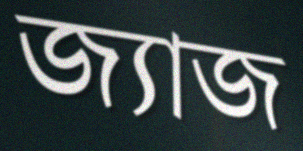
জ্যাজ